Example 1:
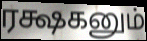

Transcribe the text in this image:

ரக்ஷகனும்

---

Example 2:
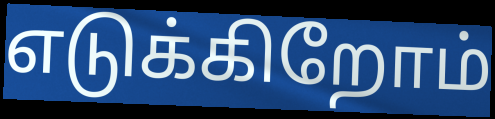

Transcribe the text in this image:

எடுக்கிறோம்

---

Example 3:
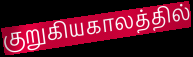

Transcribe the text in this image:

குறுகியகாலத்தில்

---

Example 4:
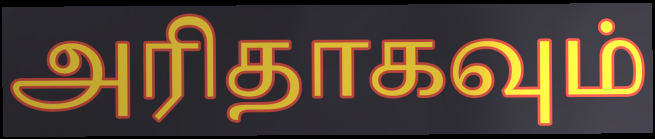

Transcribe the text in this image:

அரிதாகவும்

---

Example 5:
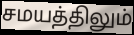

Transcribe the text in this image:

சமயத்திலும்